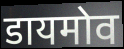
डायमोव